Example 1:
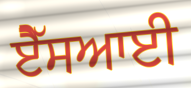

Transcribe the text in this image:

ਏੈੱਸਆਈ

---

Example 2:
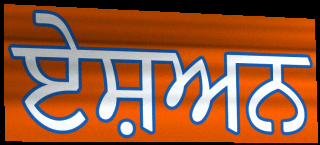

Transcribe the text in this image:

ਏਸ਼ਅਨ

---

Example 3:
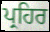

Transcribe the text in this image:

ਪ੍ਰਹਿਰ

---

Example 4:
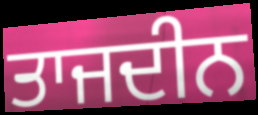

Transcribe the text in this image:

ਤਾਜਦੀਨ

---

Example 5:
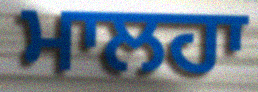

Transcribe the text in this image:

ਮਾਲਹਾ